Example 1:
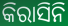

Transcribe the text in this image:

କିରାସିନି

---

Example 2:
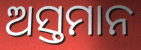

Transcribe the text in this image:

ଅସ୍ତମାନ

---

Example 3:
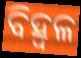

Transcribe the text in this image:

ବିହ୍ଵଳ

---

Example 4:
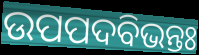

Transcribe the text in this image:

ଉପପଦବିଭନ୍ତଃ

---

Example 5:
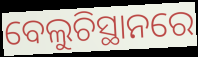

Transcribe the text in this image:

ବେଲୁଚିସ୍ଥାନରେ